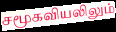
சமூகவியலிலும்